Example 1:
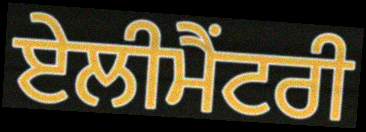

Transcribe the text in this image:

ਏਲੀਮੈਂਟਰੀ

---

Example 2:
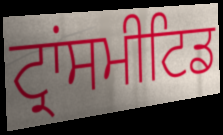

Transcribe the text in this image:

ਟ੍ਰਾਂਸਮੀਟਿਡ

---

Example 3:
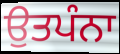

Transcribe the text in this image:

ਉਤਪੰਨਾ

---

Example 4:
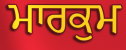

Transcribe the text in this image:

ਮਾਰਕੁਮ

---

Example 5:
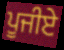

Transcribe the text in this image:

ਪੂਜੀਏ